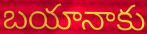
బయానాకు